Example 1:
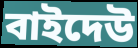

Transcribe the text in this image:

বাইদেউ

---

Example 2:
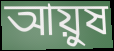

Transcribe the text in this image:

আয়ুষ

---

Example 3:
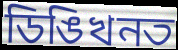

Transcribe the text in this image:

ডিঙিখনত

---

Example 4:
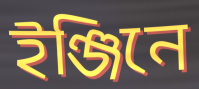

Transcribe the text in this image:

ইঞ্জিনে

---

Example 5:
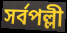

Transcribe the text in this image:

সৰ্বপল্লী